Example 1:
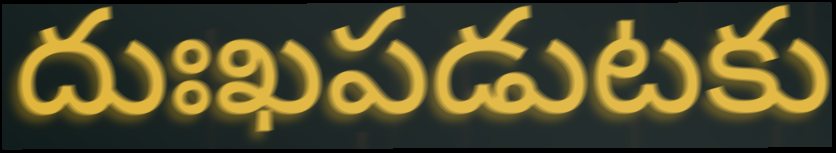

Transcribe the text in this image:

దుఃఖపడుటకు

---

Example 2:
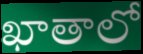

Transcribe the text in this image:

ఖాతాలో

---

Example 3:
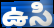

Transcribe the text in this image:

ఉసి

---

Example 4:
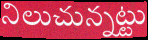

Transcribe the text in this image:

నిలుచున్నట్టు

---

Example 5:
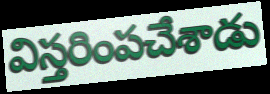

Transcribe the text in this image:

విస్తరింపచేశాడు